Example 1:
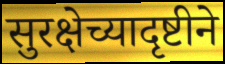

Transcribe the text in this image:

सुरक्षेच्यादृष्टीने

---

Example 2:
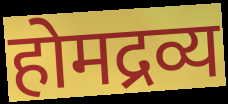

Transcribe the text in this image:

होमद्रव्य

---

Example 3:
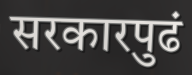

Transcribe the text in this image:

सरकारपुढं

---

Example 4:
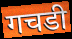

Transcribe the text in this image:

गचडी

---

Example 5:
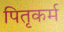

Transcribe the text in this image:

पितृकर्म